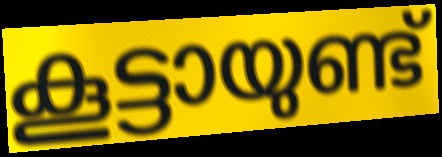
കൂട്ടായുണ്ട്